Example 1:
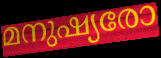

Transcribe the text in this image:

മനുഷ്യരോ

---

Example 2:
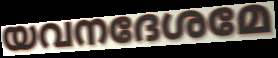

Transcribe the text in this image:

യവനദേശമേ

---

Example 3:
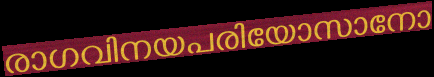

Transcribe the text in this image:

രാഗവിനയപരിയോസാനോ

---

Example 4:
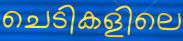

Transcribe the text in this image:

ചെടികളിലെ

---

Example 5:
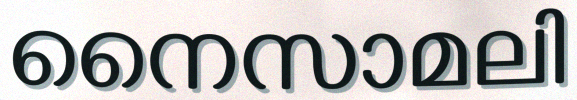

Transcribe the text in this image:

നൈസാമലി